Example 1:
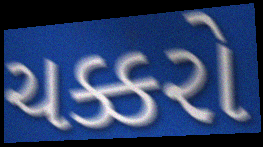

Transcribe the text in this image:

ચક્કરો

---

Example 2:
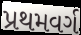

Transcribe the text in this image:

પ્રથમવર્ગ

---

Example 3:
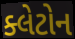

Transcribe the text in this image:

ક્લેટોન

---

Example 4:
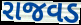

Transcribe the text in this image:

રાજવડ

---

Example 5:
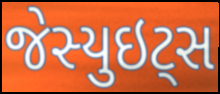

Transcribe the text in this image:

જેસ્યુઇટ્સ